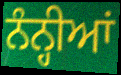
ਨੰਨ੍ਹੀਆਂ